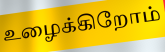
உழைக்கிறோம்